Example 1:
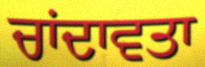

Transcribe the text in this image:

ਚਾਂਦਾਵਤਾ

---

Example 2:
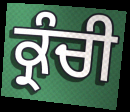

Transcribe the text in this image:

ਕ੍ਰੰਚੀ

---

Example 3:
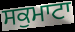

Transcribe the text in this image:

ਸਕੁਮਾਟਾ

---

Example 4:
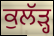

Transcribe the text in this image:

ਕੁਲੱੜ੍ਹ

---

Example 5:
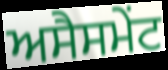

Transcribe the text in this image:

ਅਸੈਸਮੇਂਟ